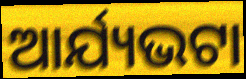
ଆର୍ଯ୍ୟଭଟା